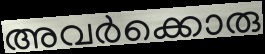
അവർക്കൊരു